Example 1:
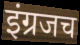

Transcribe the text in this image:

इंग्रजच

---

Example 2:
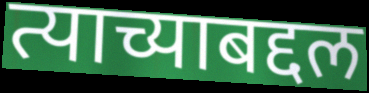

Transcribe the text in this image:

त्याच्याबद्दल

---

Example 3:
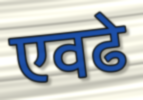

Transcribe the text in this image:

एवढे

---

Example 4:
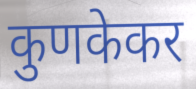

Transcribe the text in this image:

कुणकेकर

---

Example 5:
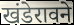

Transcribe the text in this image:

खंडेरावने